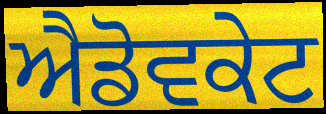
ਐਡੋਵਕੇਟ